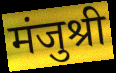
मंजुश्री